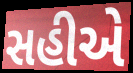
સહીએ